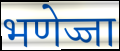
भणेज्जा